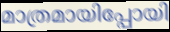
മാത്രമായിപ്പോയി